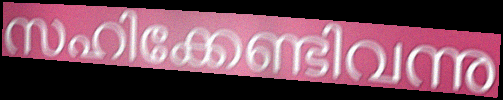
സഹിക്കേണ്ടിവന്നു